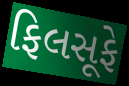
ફિલસૂફે